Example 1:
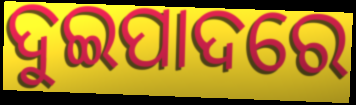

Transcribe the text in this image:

ଦୁଇପାଦରେ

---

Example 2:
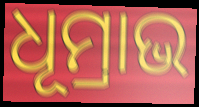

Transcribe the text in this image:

ଧୂମ୍ରାଭ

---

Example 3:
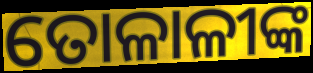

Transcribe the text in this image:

ତୋଳାଳୀଙ୍କ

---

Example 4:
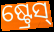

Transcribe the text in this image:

ଷ୍ଟ୍ରେସ୍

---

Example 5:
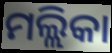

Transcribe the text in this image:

ମଲ୍ଲିକା